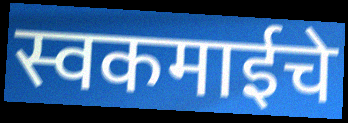
स्वकमाईचे